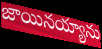
జాయినయ్యాను